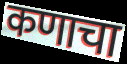
कणाचा